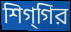
শিগ্‌গির